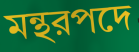
মন্থরপদে